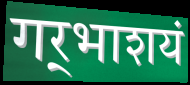
गर्भाशयं